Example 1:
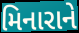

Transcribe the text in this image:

મિનારાને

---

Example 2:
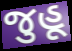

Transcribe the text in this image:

જુહૂ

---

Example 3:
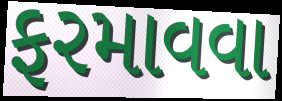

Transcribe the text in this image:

ફરમાવવા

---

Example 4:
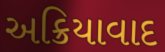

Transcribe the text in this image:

અક્રિયાવાદ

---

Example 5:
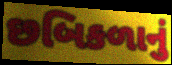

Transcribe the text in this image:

છબિકળાનું